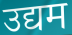
उद्यम